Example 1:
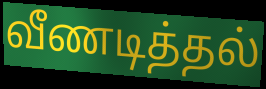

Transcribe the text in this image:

வீணடித்தல்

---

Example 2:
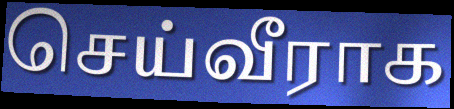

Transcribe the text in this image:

செய்வீராக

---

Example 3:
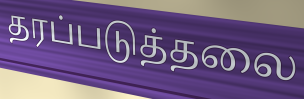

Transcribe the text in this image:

தரப்படுத்தலை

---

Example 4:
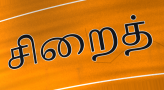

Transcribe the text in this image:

சிறைத்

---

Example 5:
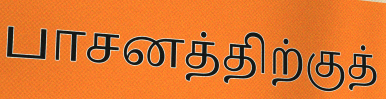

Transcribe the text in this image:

பாசனத்திற்குத்